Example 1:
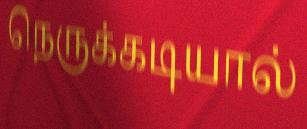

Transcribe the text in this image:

நெருக்கடியால்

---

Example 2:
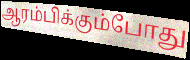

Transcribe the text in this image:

ஆரம்பிக்கும்போது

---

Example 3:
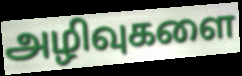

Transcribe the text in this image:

அழிவுகளை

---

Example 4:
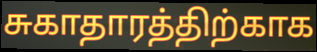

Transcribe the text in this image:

சுகாதாரத்திற்காக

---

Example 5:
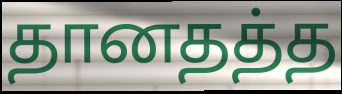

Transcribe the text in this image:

தானதத்த